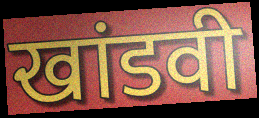
खांडवी